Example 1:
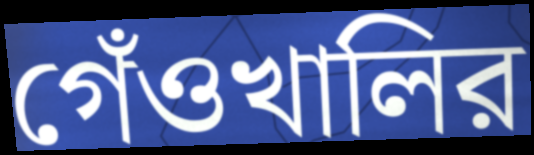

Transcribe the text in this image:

গেঁওখালির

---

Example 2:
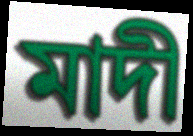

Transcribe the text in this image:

মাদী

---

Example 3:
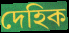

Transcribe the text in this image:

দেহিক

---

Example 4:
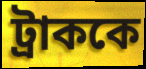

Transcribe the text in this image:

ট্রাককে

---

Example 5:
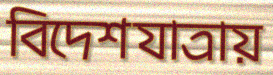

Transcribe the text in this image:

বিদেশযাত্রায়